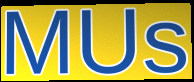
MUs